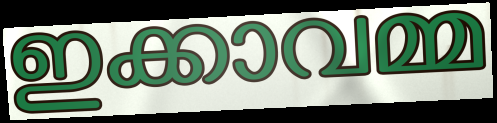
ഇക്കാവമ്മ